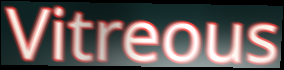
Vitreous